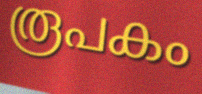
രൂപകം